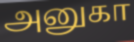
அனுகா